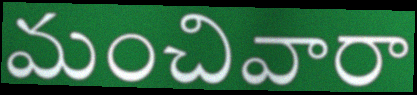
మంచివారా